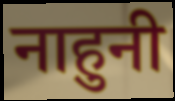
नाहुनी